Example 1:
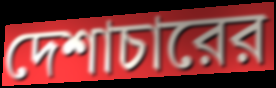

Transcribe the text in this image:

দেশাচারের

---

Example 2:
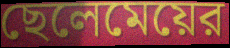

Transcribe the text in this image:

ছেলেমেয়ের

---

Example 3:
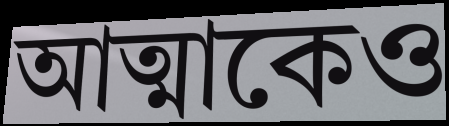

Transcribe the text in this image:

আত্মাকেও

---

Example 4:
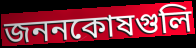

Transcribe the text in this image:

জননকোষগুলি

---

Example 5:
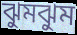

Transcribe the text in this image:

ঝুমঝুম